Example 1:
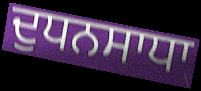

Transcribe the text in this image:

ਦੁਧਨਸਾਧਾ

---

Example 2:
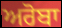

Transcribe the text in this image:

ਅਰੋਬਾ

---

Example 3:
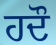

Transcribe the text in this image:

ਹਦੌ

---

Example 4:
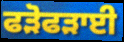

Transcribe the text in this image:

ਫੜੋਫੜਾਈ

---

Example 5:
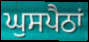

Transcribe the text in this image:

ਘੁਸਪੈਠਾਂ